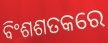
ବିଂଶଶତକରେ